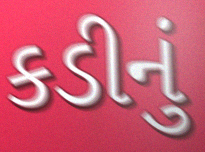
કડીનું